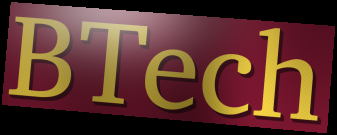
BTech